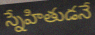
స్నేహితుడనే